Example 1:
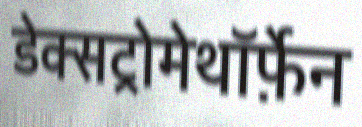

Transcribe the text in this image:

डेक्सट्रोमेथॉर्फ़ेन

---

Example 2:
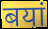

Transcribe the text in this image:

बयां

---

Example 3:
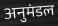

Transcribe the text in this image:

अनुमंडल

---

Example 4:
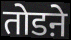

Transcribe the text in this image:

तोडऩे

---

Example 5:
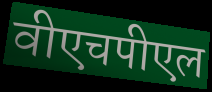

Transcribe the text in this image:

वीएचपीएल